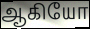
ஆகியோ